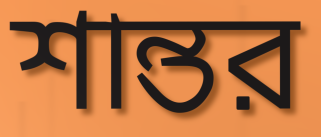
শান্তর